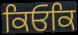
ਕਿਓਕਿ